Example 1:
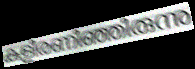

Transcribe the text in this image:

കുളിരണിഞ്ഞിരുന്നു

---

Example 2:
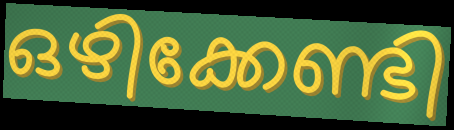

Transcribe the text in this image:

ഒഴിക്കേണ്ടി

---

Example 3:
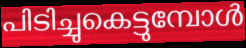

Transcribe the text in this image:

പിടിച്ചുകെട്ടുമ്പോൾ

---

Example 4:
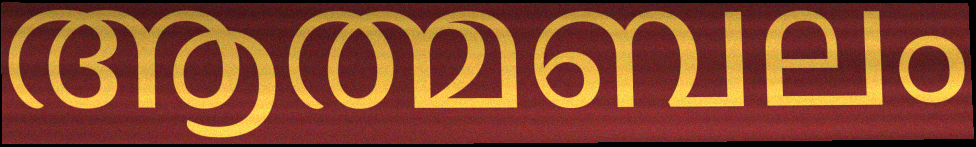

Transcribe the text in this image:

ആത്മബലം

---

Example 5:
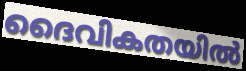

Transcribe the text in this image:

ദൈവികതയിൽ